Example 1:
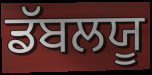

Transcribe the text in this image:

ਡੱਬਲਯੂ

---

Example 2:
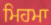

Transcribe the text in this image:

ਮਿਹਮਾ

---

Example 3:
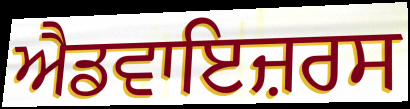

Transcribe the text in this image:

ਐਡਵਾਇਜ਼ਰਸ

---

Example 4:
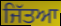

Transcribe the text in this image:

ਜਿੱਤਆ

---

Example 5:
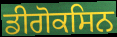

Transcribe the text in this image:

ਡੀਗੋਕਸਿਨ